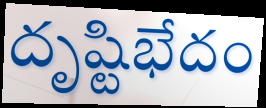
దృష్టిభేదం